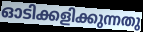
ഓടിക്കളിക്കുന്നതു